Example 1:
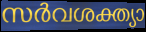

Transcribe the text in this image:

സർവശക്ത്യാ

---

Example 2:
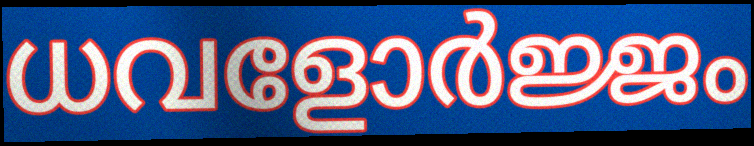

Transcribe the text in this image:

ധവളോർജ്ജം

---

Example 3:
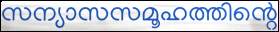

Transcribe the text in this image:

സന്യാസസമൂഹത്തിന്റെ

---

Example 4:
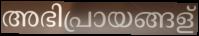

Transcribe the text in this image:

അഭിപ്രായങ്ങള്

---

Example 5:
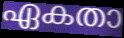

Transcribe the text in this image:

ഏകതാ